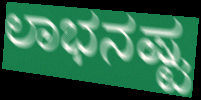
ಲಾಭನಷ್ಟ